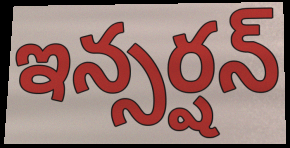
ఇన్సర్షన్